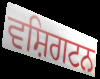
ਵਸ਼ਿਗਟਨ